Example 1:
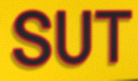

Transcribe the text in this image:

SUT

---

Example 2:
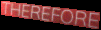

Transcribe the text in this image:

THEREFORE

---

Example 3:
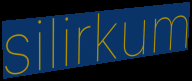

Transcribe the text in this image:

silirkum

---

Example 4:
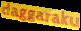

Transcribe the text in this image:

daggaraku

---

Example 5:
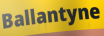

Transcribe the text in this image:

Ballantyne